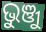
ଭୁଞ୍ଜୁ